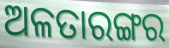
ଅଳତାରଙ୍ଗର